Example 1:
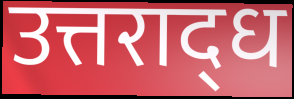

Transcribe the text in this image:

उत्तराद्ध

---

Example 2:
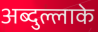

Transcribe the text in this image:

अब्दुल्लाके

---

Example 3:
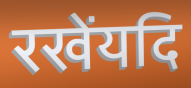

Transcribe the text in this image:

रखेंयदि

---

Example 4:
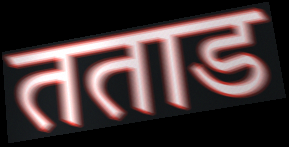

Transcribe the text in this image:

तताड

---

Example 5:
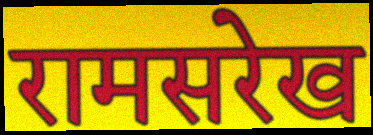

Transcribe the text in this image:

रामसरेख